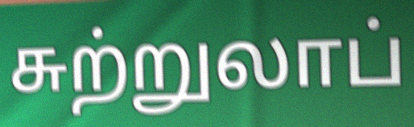
சுற்றுலாப்